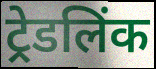
ट्रेडलिंक